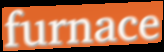
furnace